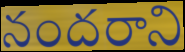
నందరాని